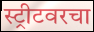
स्ट्रीटवरचा